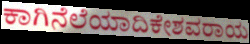
ಕಾಗಿನೆಲೆಯಾದಿಕೇಶವರಾಯ